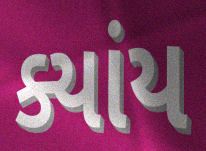
ક્યાંય